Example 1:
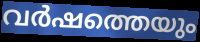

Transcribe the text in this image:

വർഷത്തെയും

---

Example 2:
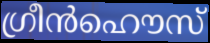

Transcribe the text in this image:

ഗ്രീൻഹൌസ്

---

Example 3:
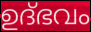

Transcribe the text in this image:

ഉദ്ഭവം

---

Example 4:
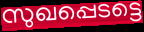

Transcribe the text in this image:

സുഖപ്പെടട്ടെ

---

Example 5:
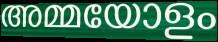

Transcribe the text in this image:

അമ്മയോളം